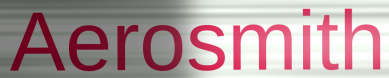
Aerosmith